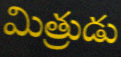
మిత్రుడు